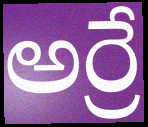
అర్రే